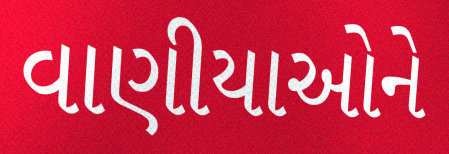
વાણીયાઓને